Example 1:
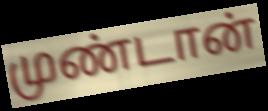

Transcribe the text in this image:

முண்டான்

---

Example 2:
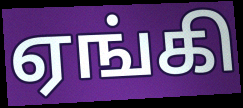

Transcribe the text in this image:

ஏங்கி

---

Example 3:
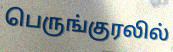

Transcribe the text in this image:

பெருங்குரலில்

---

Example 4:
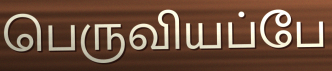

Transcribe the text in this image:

பெருவியப்பே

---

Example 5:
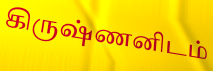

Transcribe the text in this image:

கிருஷ்ணனிடம்